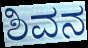
ಶಿವನ